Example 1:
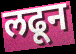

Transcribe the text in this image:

लढून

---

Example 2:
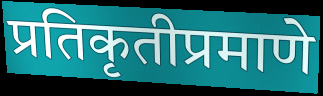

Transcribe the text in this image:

प्रतिकृतीप्रमाणे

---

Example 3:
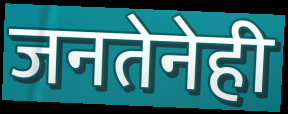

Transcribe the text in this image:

जनतेनेही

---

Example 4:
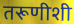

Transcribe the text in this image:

तरूणीशी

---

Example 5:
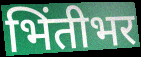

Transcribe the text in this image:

भिंतीभर